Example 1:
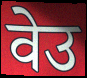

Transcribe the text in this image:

वेउ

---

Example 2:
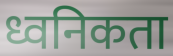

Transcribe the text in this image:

ध्वनिकता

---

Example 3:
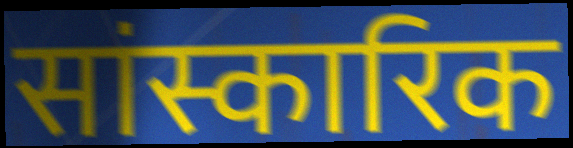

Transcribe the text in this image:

सांस्कारिक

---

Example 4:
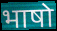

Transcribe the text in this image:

भाषो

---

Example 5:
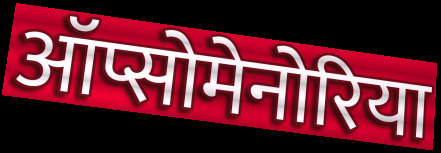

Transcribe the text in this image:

ऑप्सोमेनोरिया